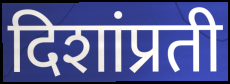
दिशांप्रती